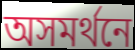
অসমর্থনে